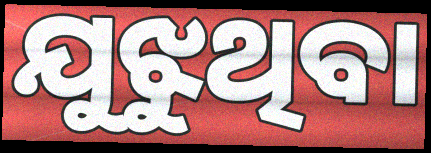
ଯୁଝୁଥିବା